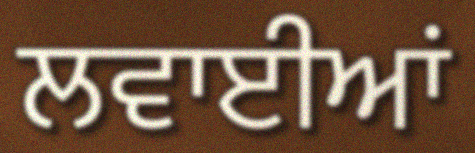
ਲਵਾਈਆਂ